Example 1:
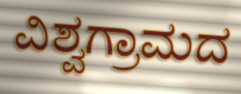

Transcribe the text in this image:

ವಿಶ್ವಗ್ರಾಮದ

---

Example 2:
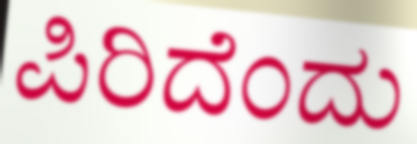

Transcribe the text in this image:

ಪಿರಿದೆಂದು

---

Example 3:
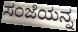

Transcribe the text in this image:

ಸಂಜೆಯನ್ನ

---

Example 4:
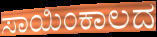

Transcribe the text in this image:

ಸಾಯಿಂಕಾಲದ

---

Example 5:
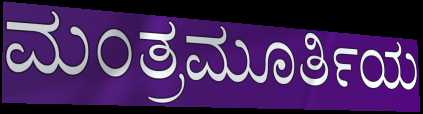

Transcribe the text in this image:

ಮಂತ್ರಮೂರ್ತಿಯ